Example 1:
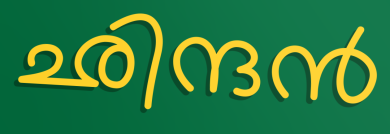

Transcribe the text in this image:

ഛിന്ദൻ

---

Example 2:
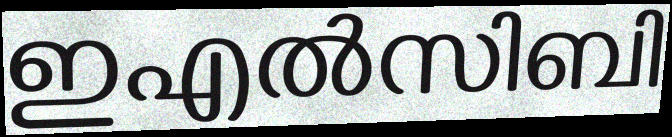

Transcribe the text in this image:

ഇഎൽസിബി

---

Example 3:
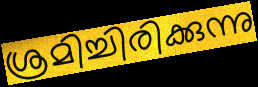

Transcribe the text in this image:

ശ്രമിച്ചിരിക്കുന്നു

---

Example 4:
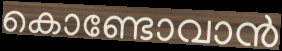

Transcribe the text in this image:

കൊണ്ടോവാൻ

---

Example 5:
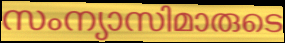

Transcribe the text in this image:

സംന്യാസിമാരുടെ